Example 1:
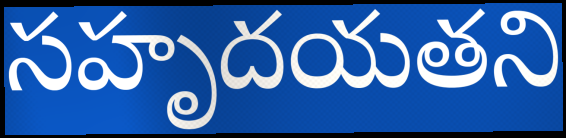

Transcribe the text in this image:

సహృదయతని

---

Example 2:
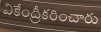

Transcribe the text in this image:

వికేంద్రీకరించారు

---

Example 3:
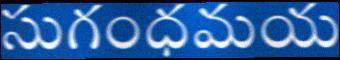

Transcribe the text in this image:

సుగంధమయ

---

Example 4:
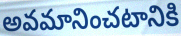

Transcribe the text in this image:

అవమానించటానికి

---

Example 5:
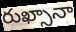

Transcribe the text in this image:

రుఖ్సానా